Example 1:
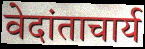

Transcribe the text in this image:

वेदांताचार्य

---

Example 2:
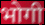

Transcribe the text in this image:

भोगी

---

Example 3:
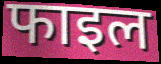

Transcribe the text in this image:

फाइल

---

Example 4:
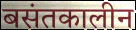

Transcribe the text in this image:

बसंतकालीन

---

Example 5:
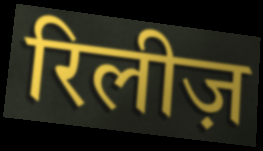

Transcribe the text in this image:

रिलीज़